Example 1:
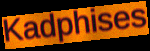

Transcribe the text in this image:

Kadphises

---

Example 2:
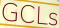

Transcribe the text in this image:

GCLs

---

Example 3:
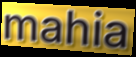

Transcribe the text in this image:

mahia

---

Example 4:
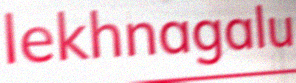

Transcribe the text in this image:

lekhnagalu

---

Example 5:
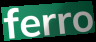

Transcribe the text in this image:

ferro